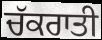
ਚੱਕਰਾਤੀ